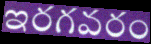
ఇరగవరం